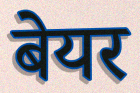
बेयर